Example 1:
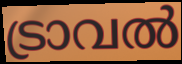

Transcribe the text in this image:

ട്രാവൽ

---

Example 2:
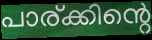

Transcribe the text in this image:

പാര്ക്കിന്റെ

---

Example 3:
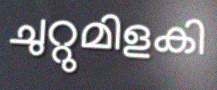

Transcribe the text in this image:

ചുറ്റുമിളകി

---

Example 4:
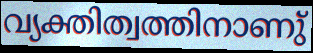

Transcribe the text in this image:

വ്യക്തിത്വത്തിനാണു്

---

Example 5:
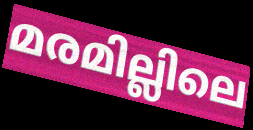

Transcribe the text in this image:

മരമില്ലിലെ